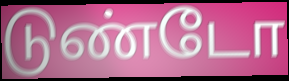
டுண்டோ